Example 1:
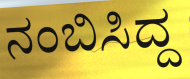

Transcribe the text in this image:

ನಂಬಿಸಿದ್ದ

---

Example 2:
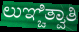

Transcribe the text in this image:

ಲುಞ್ಚಿತ್ವಾತಿ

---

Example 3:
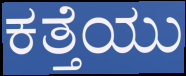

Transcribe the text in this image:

ಕತ್ತೆಯು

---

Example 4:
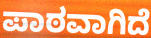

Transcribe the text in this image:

ಪಾಠವಾಗಿದೆ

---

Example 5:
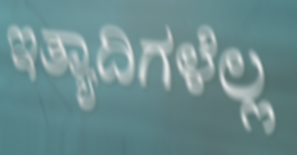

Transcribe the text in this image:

ಇತ್ಯಾದಿಗಳೆಲ್ಲ